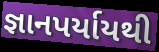
જ્ઞાનપર્યાયથી